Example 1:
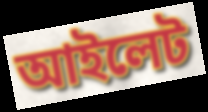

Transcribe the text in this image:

আইলেট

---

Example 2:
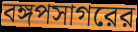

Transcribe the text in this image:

বঙ্গপসাগরের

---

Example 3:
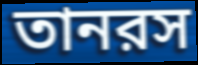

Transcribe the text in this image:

তানরস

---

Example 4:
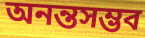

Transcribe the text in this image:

অনন্তসম্ভব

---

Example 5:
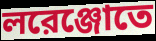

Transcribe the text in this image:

লরেঞ্জোতে